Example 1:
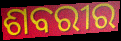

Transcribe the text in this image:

ଶବରୀର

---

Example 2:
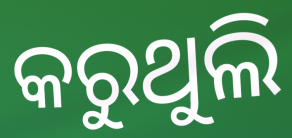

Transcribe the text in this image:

କରୁଥୁଲି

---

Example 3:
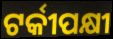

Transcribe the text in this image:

ଟର୍କୀପକ୍ଷୀ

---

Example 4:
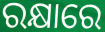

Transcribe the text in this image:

ରକ୍ଷାରେ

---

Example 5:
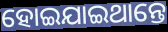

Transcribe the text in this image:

ହୋଇଯାଇଥାନ୍ତେ